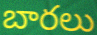
బారలు